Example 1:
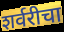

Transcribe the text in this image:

शर्वरीचा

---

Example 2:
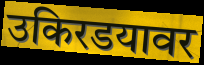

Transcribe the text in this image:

उकिरडयावर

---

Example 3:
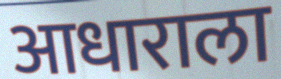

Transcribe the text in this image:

आधाराला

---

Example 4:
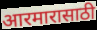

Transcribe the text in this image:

आरमारासाठी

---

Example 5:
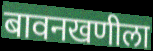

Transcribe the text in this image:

बावनखणीला